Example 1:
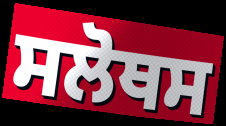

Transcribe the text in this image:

ਸਲੋਥਸ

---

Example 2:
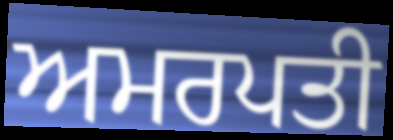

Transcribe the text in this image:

ਅਮਰਪਤੀ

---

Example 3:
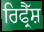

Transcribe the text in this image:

ਰਿਫ੍ਰੈੱਸ਼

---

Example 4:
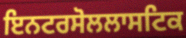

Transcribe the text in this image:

ਇਨਟਰਸੋਲਲਾਸਟਿਕ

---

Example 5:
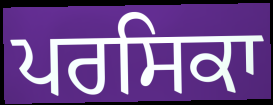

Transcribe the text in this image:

ਪਰਸਿਕਾ